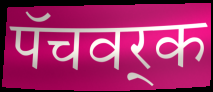
पॅचवर्क